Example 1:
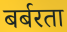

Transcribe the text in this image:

बर्बरता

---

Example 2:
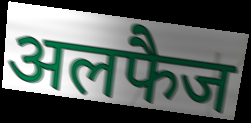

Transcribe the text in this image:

अलफैज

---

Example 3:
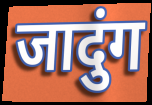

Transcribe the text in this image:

जादुंग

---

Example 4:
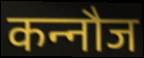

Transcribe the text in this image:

कन्नौज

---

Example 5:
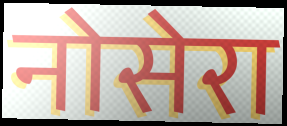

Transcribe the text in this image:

नोसेरा